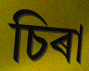
চিৰা